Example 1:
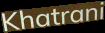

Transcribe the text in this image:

Khatrani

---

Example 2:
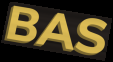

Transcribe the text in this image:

BAS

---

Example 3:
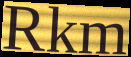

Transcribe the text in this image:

Rkm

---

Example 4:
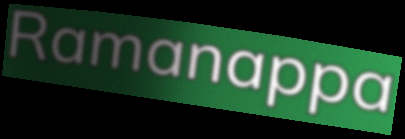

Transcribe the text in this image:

Ramanappa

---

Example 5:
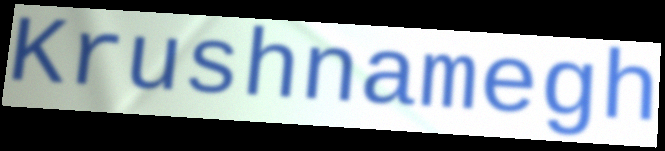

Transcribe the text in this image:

Krushnamegh